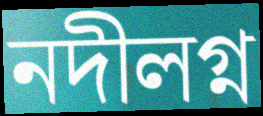
নদীলগ্ন